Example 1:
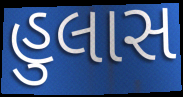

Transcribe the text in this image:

હુલાસ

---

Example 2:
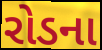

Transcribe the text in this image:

રોડના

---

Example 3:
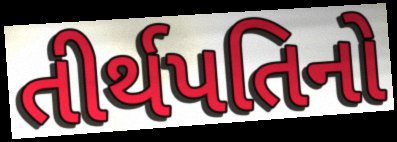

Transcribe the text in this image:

તીર્થપતિનો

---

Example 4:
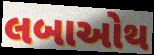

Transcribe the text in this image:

લબાઓથ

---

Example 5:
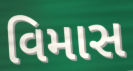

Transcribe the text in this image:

વિમાસ